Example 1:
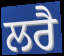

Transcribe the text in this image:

ਲਰੈ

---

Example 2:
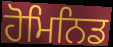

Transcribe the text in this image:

ਹੋਮਿਨਿਡ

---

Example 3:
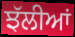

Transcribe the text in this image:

ਝੱਲੀਆਂ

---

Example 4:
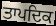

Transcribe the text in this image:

ਤਾਪਦਿਕ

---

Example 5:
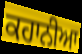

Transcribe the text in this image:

ਕਹਾਨੀਆ